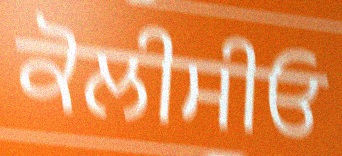
ਕੋਲੀਸੀਓ